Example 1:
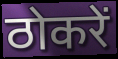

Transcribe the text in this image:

ठोकरें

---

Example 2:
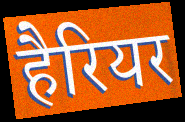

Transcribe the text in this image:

हैरियर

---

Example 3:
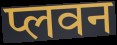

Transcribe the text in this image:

प्लवन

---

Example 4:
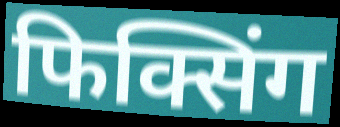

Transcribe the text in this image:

फिक्सिंग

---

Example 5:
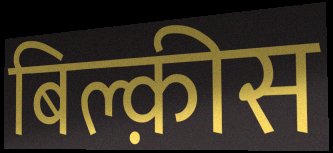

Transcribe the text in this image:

बिल्क़ीस